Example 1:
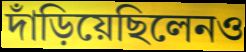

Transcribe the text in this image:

দাঁড়িয়েছিলেনও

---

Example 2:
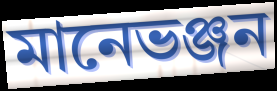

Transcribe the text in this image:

মানেভঞ্জন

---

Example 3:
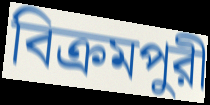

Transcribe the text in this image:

বিক্রমপুরী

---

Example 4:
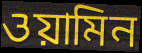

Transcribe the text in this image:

ওয়ামিন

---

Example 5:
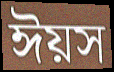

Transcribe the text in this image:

ঈয়স